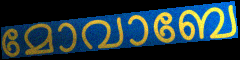
മോവാബേ